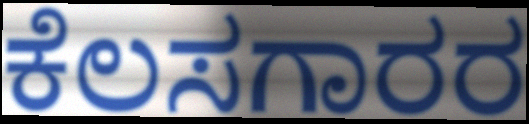
ಕೆಲಸಗಾರರ